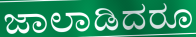
ಜಾಲಾಡಿದರೂ